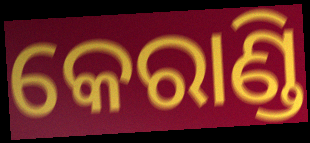
କେରାଣ୍ଡି